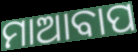
ମାଆବାପ